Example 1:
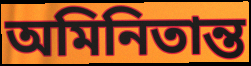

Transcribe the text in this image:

অমিনিতান্ত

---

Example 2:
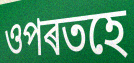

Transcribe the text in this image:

ওপৰতহে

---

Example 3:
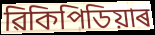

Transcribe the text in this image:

ৱিকিপিডিয়াৰ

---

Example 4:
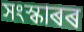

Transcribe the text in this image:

সংস্কাৰৰ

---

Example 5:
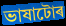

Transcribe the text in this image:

ভাষাটোৰ